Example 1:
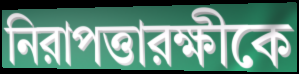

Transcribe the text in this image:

নিরাপত্তারক্ষীকে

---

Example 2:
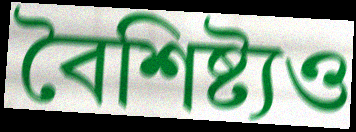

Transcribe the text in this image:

বৈশিষ্ট্যও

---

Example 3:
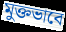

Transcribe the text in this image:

মুক্তভাবে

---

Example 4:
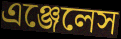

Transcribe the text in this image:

এঞ্জেলেস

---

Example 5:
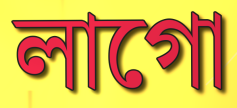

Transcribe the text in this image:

লাগো